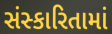
સંસ્કારિતામાં